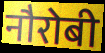
नौरोबी